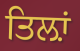
ਤਿਲ਼ਾਂ